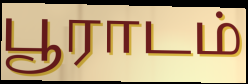
பூராடம்